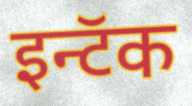
इन्टॅक